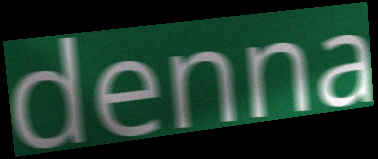
denna